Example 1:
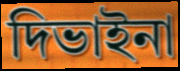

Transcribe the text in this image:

দিভাইনা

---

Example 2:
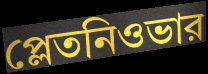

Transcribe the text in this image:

প্লেতনিওভার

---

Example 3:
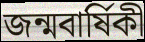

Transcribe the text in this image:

জন্মবার্ষিকী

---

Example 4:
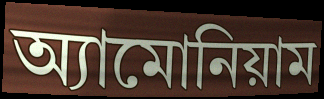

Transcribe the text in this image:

অ্যামোনিয়াম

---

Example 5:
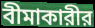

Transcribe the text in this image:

বীমাকারীর